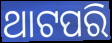
ଥାଟପରି